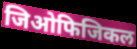
जिओफिजिकल